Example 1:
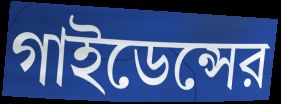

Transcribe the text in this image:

গাইডেন্সের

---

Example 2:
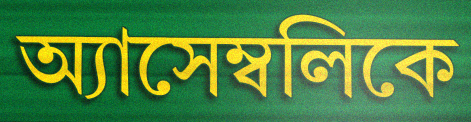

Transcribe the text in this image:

অ্যাসেম্বলিকে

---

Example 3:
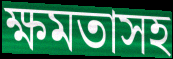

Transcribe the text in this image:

ক্ষমতাসহ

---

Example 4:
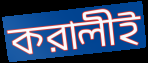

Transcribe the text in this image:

করালীই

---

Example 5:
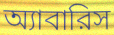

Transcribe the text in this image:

অ্যাবারিস